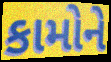
કામોને